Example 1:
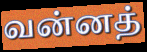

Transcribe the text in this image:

வன்னத்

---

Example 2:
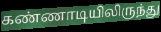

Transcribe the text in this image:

கண்ணாடியிலிருந்து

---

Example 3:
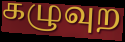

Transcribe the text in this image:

கழுவுற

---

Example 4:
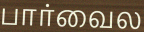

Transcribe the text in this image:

பார்வைல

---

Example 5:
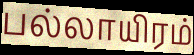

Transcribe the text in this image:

பல்லாயிரம்